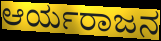
ಆರ್ಯರಾಜನ